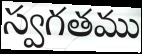
స్వగతము